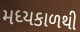
મધ્યકાળથી